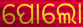
ପୋଲୋ